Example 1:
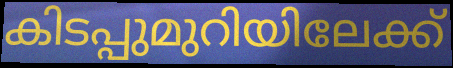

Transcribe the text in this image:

കിടപ്പുമുറിയിലേക്ക്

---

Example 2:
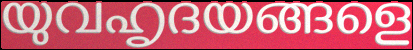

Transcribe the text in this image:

യുവഹൃദയങ്ങളെ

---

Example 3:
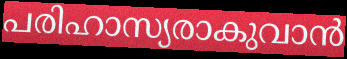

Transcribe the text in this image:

പരിഹാസ്യരാകുവാൻ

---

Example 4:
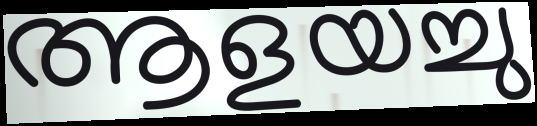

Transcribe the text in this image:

ആളയച്ചു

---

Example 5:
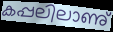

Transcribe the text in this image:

കപ്പലിലാണു്